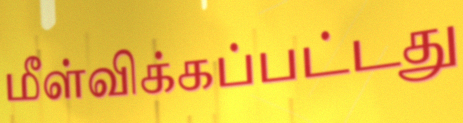
மீள்விக்கப்பட்டது